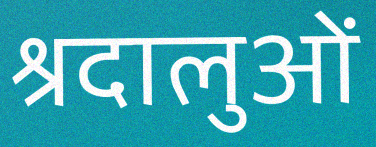
श्रदालुओं